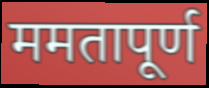
ममतापूर्ण